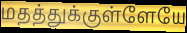
மதத்துக்குள்ளேயே